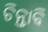
ଚିନ୍ତାବି